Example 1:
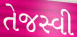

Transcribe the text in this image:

તેજસ્વી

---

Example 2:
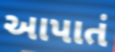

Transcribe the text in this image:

આપાતં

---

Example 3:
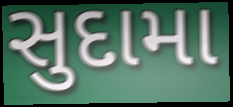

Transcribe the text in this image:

સુદામા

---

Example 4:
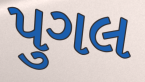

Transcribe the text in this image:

પુગલ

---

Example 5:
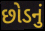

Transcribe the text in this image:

છોડનું